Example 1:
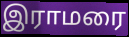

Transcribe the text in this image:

இராமரை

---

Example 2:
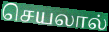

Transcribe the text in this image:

செயலால்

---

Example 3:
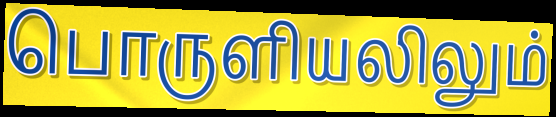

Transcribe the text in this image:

பொருளியலிலும்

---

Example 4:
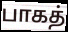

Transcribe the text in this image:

பாகத்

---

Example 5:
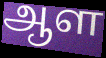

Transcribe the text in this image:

ஆள